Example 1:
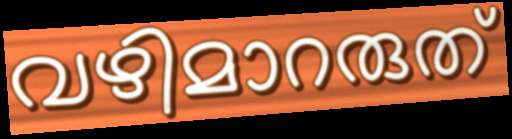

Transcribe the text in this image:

വഴിമാറരുത്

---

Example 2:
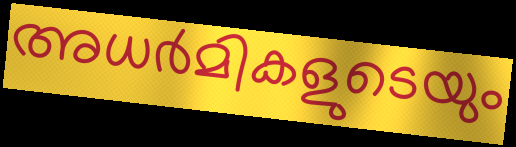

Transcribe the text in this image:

അധർമികളുടെയും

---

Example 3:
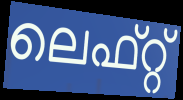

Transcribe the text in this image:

ലെഫ്റ്റ്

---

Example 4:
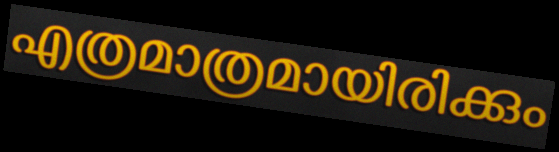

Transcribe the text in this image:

എത്രമാത്രമായിരിക്കും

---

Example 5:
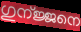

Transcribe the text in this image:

ഗുന്ജ്ജനെ